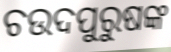
ଚଉଦପୁରୁଷଙ୍କ